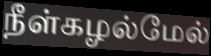
நீள்கழல்மேல்